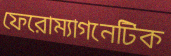
ফেরোম্যাগনেটিক